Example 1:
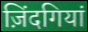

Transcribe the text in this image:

ज़िंदगियां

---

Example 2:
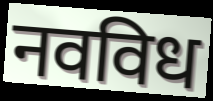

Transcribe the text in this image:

नवविध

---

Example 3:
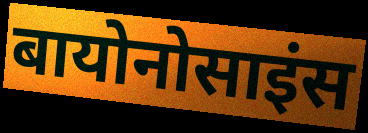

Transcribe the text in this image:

बायोनोसाइंस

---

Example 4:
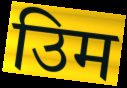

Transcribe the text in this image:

उिम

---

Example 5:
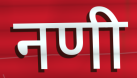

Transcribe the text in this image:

नणी